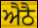
ਐਠੈ